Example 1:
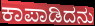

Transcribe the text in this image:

ಕಾಪಾಡಿದನು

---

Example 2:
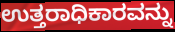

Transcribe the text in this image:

ಉತ್ತರಾಧಿಕಾರವನ್ನು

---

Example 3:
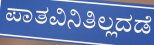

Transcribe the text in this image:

ಪಾತವಿನಿತಿಲ್ಲದಡೆ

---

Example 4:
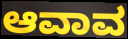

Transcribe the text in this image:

ಆವಾವ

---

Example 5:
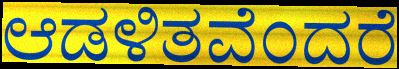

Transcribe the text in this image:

ಆಡಳಿತವೆಂದರೆ